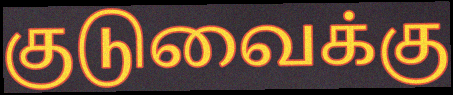
குடுவைக்கு